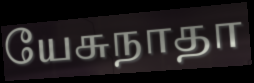
யேசுநாதா